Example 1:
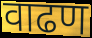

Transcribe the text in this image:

वाढण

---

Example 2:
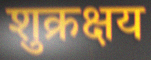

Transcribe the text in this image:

शुक्रक्षय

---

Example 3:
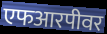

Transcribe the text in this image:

एफआरपीवर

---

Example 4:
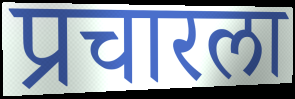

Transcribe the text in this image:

प्रचारला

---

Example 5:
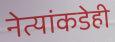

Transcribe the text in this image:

नेत्यांकडेही